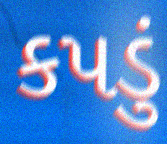
કપડું